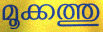
മൂക്കത്തു